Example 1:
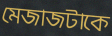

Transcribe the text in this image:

মেজাজটাকে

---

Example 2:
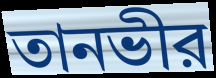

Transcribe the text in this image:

তানভীর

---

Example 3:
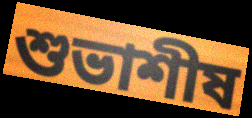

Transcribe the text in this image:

শুভাশীষ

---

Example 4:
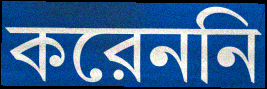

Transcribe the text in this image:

করেননি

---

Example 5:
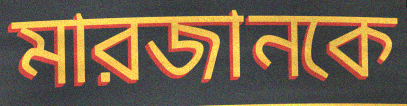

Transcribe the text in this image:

মারজানকে